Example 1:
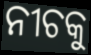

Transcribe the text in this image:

ନୀଚକୁ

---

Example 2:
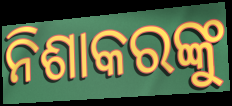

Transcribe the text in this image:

ନିଶାକରଙ୍କୁ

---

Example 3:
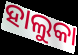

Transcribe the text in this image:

ହାଲୁକା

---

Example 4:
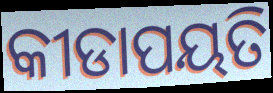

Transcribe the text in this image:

କୀଡାପୟତି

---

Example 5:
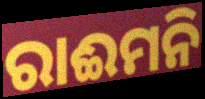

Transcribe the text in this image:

ରାଈମନି